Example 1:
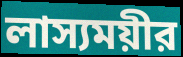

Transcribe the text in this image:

লাস্যময়ীর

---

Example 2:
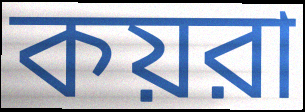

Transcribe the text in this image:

কয়রা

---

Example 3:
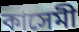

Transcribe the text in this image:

কাসেমী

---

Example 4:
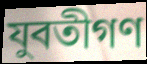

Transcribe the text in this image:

যুবতীগণ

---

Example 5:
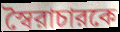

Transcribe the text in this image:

স্বৈরাচারকে